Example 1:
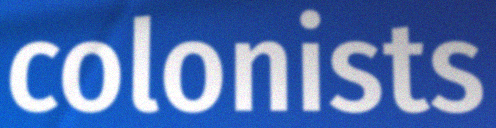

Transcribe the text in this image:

colonists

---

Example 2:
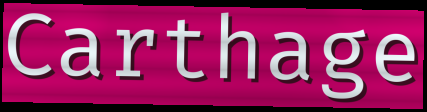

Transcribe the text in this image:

Carthage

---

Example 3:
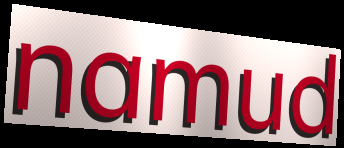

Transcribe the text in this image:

namud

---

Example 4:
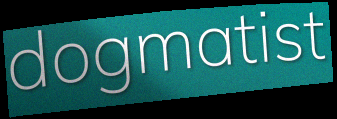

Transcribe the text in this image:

dogmatist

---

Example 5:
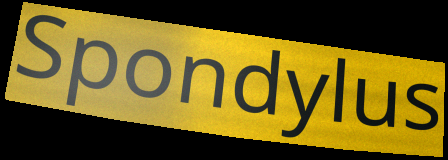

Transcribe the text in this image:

Spondylus